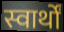
स्वार्थों